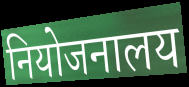
नियोजनालय